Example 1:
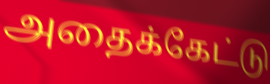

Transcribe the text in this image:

அதைக்கேட்டு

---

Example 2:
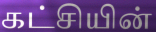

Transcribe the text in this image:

கட்சியின்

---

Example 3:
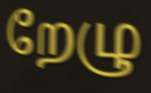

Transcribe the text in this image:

றேழு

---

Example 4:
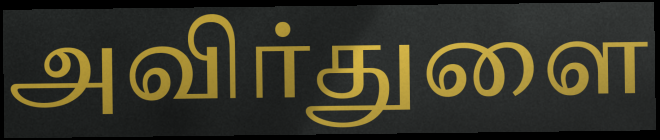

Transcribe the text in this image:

அவிர்துளை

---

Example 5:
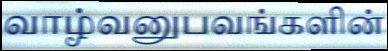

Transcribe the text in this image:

வாழ்வனுபவங்களின்